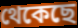
থেকেছে